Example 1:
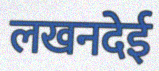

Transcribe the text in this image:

लखनदेई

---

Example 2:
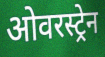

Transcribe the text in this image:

ओवरस्ट्रेन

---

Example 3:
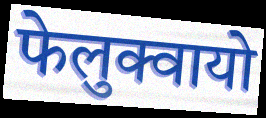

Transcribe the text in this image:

फेलुक्वायो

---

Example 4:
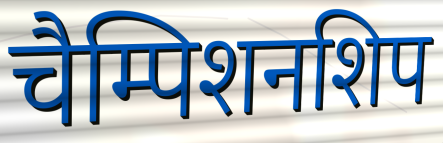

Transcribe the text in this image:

चैम्पिशनशिप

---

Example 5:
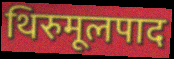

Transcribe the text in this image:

थिरुमूलपाद